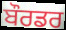
ਬੌਰਡਰ